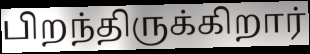
பிறந்திருக்கிறார்